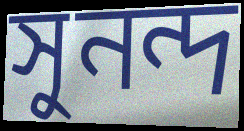
সুনন্দ